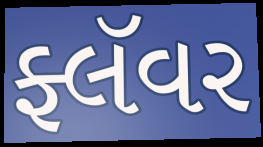
ફ્લૅવર